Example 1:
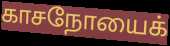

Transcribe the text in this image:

காசநோயைக்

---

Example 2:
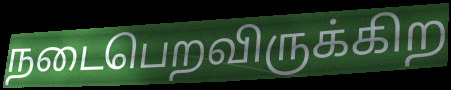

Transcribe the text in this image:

நடைபெறவிருக்கிற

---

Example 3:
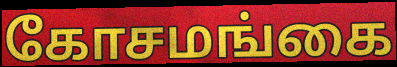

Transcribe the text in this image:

கோசமங்கை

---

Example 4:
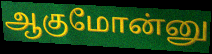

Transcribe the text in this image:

ஆகுமோன்னு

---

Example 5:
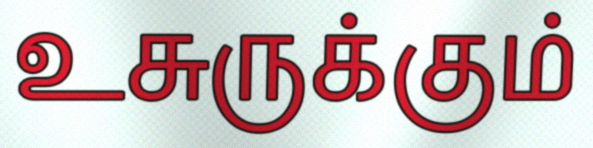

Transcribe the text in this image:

உசுருக்கும்